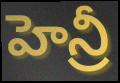
హెన్రీ